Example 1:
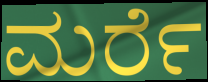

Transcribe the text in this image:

ಮರ್ರೆ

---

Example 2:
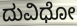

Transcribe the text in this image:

ದುವಿಧೋ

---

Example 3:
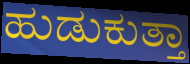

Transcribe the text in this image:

ಹುಡುಕುತ್ತಾ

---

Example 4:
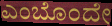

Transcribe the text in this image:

ಎಂಬೊಂದೇ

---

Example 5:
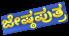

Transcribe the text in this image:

ಜೇಷ್ಠಪುತ್ರ